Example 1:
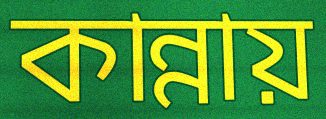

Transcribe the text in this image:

কান্নায়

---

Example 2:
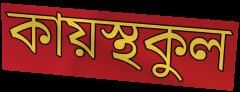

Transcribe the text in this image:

কায়স্থকুল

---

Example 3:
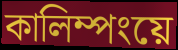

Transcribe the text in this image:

কালিম্পংয়ে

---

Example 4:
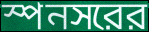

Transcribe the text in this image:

স্পনসরের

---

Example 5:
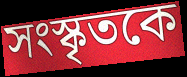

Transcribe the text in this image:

সংস্কৃতকে